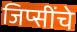
जिप्सींचे